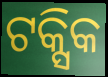
ଟକ୍ସିକ